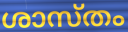
ശാസ്തം